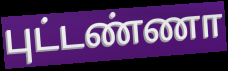
புட்டண்ணா